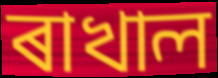
ৰাখাল